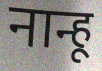
नान्हू